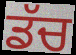
ਡੱਚ